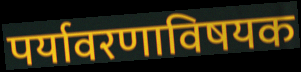
पर्यावरणाविषयक